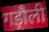
गड़ौली